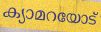
ക്യാമറയോട്